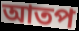
আতপ